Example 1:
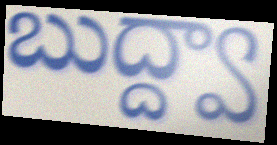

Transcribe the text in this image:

బుద్ద్వా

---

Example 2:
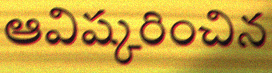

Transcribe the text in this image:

ఆవిష్కరించిన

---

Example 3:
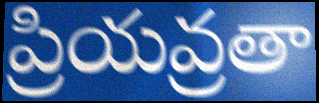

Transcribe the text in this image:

ప్రియవ్రతా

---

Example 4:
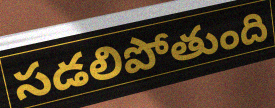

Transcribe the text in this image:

సడలిపోతుంది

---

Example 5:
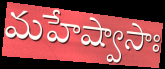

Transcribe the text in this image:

మహేష్వాసాః